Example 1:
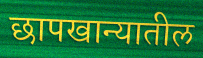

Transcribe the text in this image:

छापखान्यातील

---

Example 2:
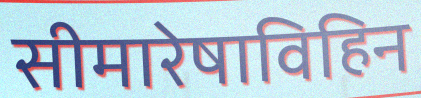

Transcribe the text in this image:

सीमारेषाविहिन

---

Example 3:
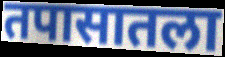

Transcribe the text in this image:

तपासातला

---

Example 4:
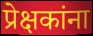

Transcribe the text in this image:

प्रेक्षकांना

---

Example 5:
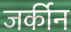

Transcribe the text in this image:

जर्कीन